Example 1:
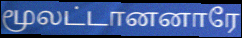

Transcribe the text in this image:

மூலட்டானனாரே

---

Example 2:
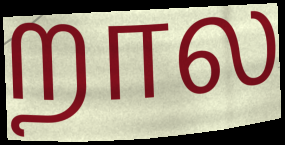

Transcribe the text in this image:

றால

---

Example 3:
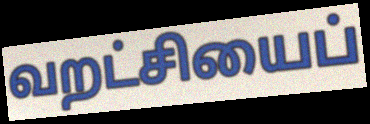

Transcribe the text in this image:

வறட்சியைப்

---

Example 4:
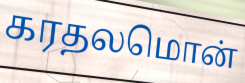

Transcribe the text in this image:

கரதலமொன்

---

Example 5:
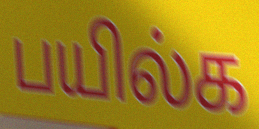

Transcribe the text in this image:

பயில்க